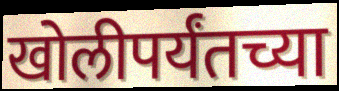
खोलीपर्यंतच्या